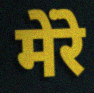
मेंरे